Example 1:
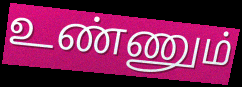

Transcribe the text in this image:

உண்ணும்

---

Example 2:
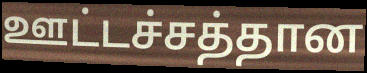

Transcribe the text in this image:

ஊட்டச்சத்தான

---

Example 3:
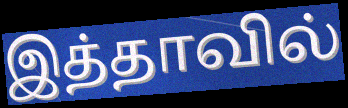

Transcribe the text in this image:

இத்தாவில்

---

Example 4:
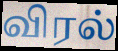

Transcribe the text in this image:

விரல்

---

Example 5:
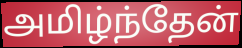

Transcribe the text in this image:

அமிழ்ந்தேன்